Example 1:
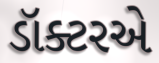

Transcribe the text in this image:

ડૉક્ટરએ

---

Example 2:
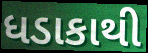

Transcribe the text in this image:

ધડાકાથી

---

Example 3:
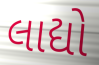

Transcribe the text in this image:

લાદ્યો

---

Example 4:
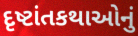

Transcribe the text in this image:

દૃષ્ટાંતકથાઓનું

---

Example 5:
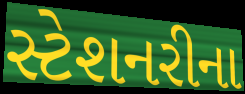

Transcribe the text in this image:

સ્ટેશનરીના